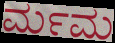
ರ್ಮಮ